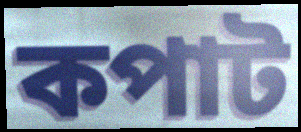
কপাট